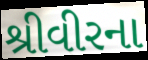
શ્રીવીરના